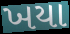
ખયા